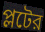
প্লটের